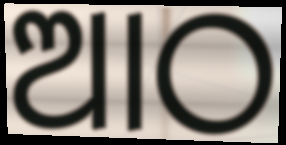
ଆଠ